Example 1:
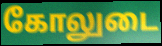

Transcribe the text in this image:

கோலுடை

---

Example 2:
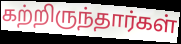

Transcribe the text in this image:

கற்றிருந்தார்கள்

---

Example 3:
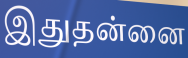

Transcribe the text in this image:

இதுதன்னை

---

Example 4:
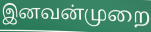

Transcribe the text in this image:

இனவன்முறை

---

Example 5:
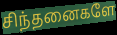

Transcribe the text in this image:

சிந்தனைகளே